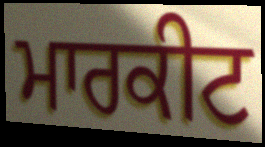
ਮਾਰਕੀਟ